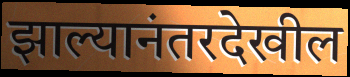
झाल्यानंतरदेखील